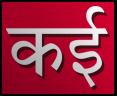
कई